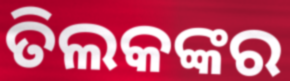
ତିଲକଙ୍କର